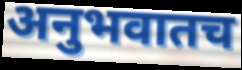
अनुभवातच